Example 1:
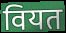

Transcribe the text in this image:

वियत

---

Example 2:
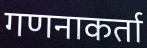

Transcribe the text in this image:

गणनाकर्ता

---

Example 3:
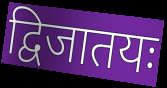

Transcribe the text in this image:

द्विजातयः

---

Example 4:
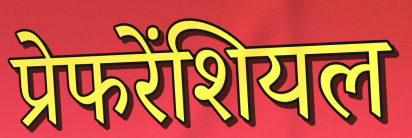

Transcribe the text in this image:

प्रेफरेंशियल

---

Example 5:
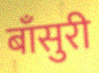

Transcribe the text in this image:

बाँसुरी